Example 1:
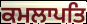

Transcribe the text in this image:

ਕਮਲਾਪਤਿ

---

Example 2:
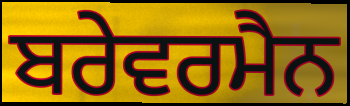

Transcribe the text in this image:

ਬਰੇਵਰਮੈਨ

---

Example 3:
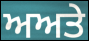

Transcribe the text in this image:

ਅਅਤੇ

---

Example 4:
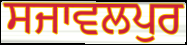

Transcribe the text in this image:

ਸਜਾਵਲਪੁਰ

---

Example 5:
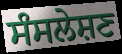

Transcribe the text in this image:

ਸੰਸਲੇਸ਼ਣ